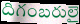
దిగంబరులై